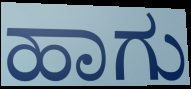
ಹಾಗು